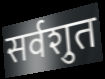
सर्वश्रुत